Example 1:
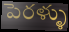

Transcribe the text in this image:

పెరళ్ళు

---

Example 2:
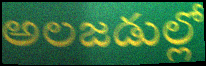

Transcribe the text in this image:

అలజడుల్లో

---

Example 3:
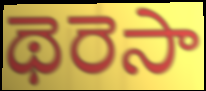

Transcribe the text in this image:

థెరెసా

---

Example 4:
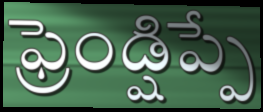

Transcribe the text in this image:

ఫ్రెండ్షిప్పే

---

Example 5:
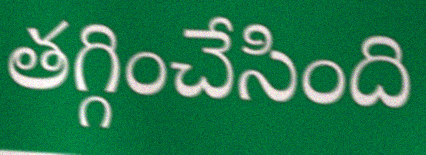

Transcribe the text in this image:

తగ్గించేసింది